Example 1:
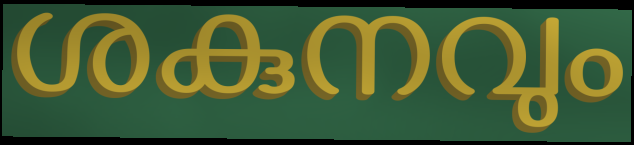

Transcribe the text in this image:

ശകുനവും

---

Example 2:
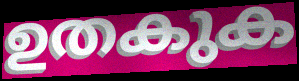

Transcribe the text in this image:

ഉതകുക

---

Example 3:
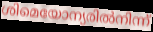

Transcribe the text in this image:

ശിമെയോന്യരിൽനിന്ന്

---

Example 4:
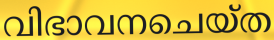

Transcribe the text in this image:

വിഭാവനചെയ്ത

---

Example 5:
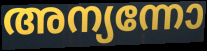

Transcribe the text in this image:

അന്യന്നോ